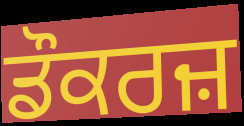
ਡੌਕਰਜ਼